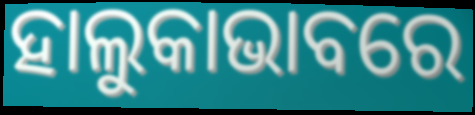
ହାଲୁକାଭାବରେ